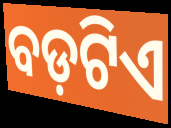
ବଡ଼ଟିଏ